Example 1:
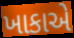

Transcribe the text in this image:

ખાકાએ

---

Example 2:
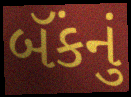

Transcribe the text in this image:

બૅંકનું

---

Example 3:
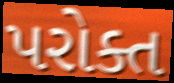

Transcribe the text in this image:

પરોક્ત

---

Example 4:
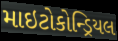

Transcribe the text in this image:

માઇટોકોન્ડ્રિયલ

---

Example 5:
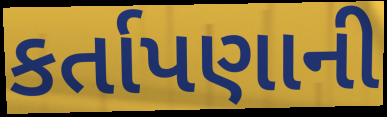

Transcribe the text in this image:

કર્તાપણાની